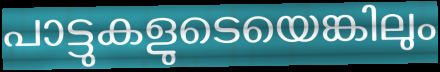
പാട്ടുകളുടെയെങ്കിലും